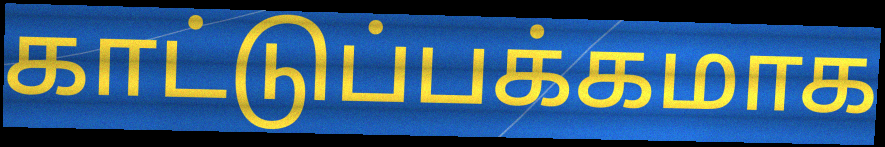
காட்டுப்பக்கமாக